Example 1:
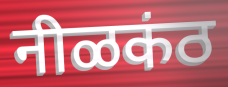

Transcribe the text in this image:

नीळकंठ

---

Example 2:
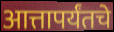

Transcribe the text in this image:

आत्तापर्यंतचे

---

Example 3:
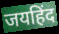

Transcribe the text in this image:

जयहिंद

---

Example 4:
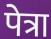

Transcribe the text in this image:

पेत्रा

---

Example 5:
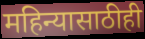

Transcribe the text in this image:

महिन्यासाठीही